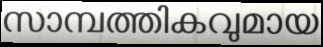
സാമ്പത്തികവുമായ